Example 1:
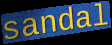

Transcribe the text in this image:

sandal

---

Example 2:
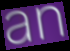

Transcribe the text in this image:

an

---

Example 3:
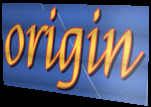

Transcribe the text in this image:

origin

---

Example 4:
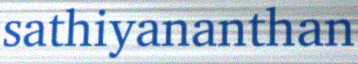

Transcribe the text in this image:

sathiyananthan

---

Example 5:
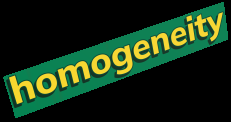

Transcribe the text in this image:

homogeneity